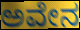
ಅವೇನ